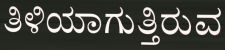
ತಿಳಿಯಾಗುತ್ತಿರುವ